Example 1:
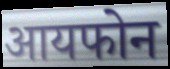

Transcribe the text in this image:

आयफोन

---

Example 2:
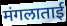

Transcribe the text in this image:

मंगलाताई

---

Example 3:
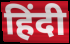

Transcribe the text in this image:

हिंदी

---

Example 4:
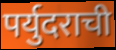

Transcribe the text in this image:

पर्युदराची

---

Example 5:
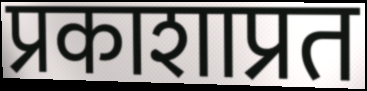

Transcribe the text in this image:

प्रकाशाप्रत